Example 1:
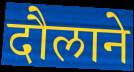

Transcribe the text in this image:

दौलाने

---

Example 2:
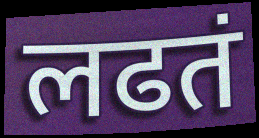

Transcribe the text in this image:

लढतं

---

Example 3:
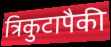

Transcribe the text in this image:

त्रिकुटापैकी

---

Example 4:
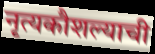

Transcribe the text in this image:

नृत्यकौशल्याची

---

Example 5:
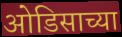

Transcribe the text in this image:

ओडिसाच्या